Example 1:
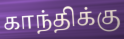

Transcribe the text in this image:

காந்திக்கு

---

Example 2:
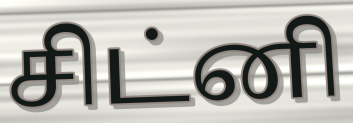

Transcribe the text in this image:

சிட்னி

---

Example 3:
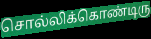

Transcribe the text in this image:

சொல்லிக்கொண்டிரு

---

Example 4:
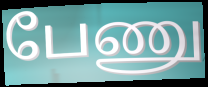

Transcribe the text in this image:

பேணு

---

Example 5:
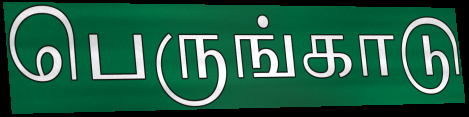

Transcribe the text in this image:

பெருங்காடு